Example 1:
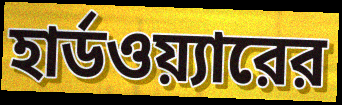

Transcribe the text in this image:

হার্ডওয়্যারের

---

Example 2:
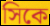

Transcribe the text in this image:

সিকে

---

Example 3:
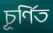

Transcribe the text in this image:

চূর্ণিত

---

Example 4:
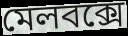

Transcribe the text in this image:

মেলবক্সে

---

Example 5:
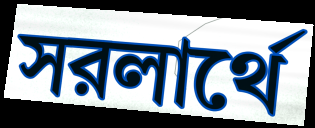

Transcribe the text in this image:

সরলার্থে